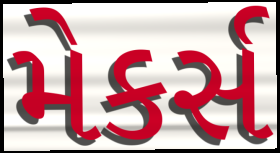
મેકર્સ